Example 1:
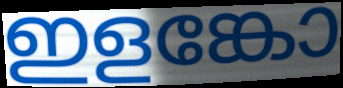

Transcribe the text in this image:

ഇളങ്കോ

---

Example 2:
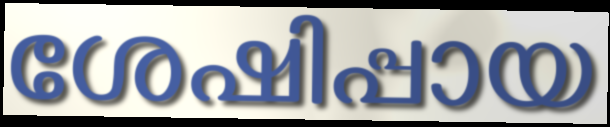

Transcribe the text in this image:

ശേഷിപ്പായ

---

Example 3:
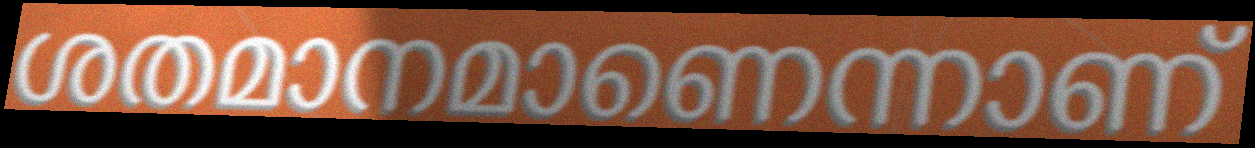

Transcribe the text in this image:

ശതമാനമാണെന്നാണ്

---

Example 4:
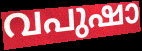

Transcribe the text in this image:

വപുഷാ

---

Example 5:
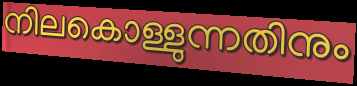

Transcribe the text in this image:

നിലകൊള്ളുന്നതിനും